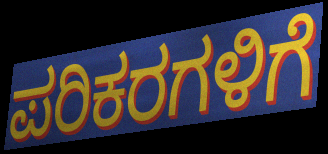
ಪರಿಕರಗಳಿಗೆ